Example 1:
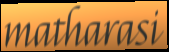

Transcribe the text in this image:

matharasi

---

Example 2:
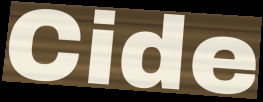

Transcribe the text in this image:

Cide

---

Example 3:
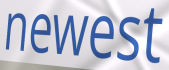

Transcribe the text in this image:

newest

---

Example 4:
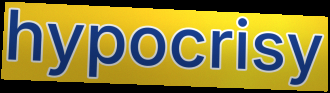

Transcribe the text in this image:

hypocrisy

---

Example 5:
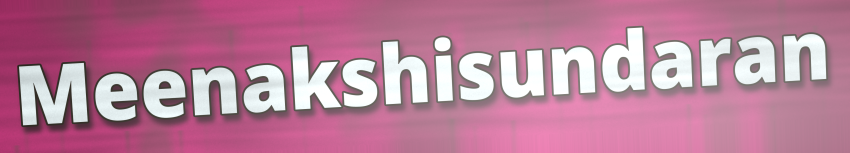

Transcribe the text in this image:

Meenakshisundaran